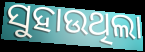
ସୁହାଉଥିଲା